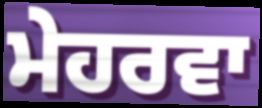
ਮੇਹਰਵਾ